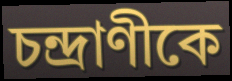
চন্দ্রাণীকে